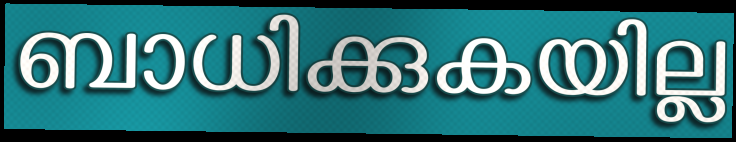
ബാധിക്കുകയില്ല